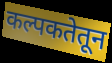
कल्पकतेतून